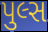
પુલ્સ